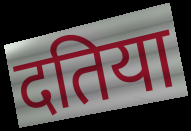
दतिया